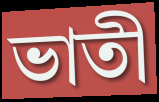
ভাতী